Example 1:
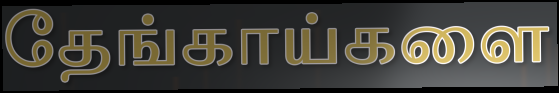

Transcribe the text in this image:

தேங்காய்களை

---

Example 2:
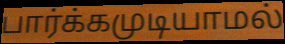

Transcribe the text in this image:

பார்க்கமுடியாமல்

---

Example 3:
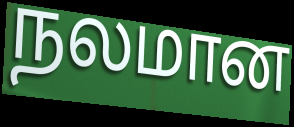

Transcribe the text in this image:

நலமான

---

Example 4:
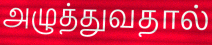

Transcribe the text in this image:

அழுத்துவதால்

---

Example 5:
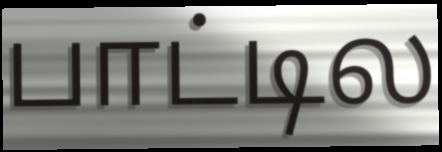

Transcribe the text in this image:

பாட்டில